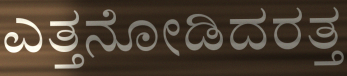
ಎತ್ತನೋಡಿದರತ್ತ